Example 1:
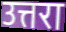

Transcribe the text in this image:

उत्तरा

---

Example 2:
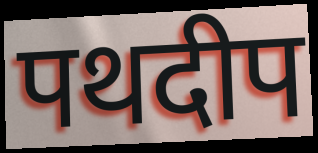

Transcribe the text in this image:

पथदीप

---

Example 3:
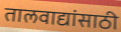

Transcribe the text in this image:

तालवाद्यांसाठी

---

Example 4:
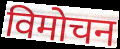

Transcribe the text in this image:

विमोचन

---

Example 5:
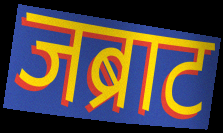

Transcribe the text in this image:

जब्राट